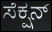
ಸೆಕ್ಷನ್